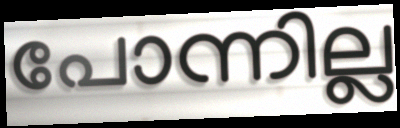
പോന്നില്ല